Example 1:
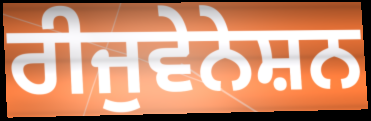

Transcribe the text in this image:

ਰੀਜੁਵੇਨੇਸ਼ਨ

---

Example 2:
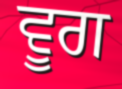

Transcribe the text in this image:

ਵੂਗ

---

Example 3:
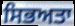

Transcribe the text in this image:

ਸਿਭਅਤਾ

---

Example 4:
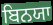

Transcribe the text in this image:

ਬਿਨਯਾ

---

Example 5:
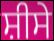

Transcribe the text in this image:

ਸ਼ੀਸੇ